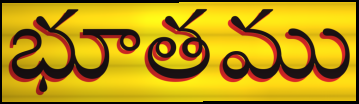
భూతము